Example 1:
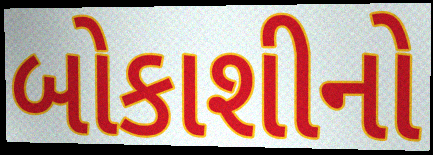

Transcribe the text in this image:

બોકાશીનો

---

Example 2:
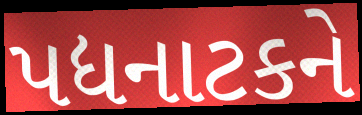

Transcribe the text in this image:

પદ્યનાટકને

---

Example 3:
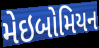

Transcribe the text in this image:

મેઇબોમિયન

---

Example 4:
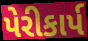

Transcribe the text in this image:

પેરીકાર્પ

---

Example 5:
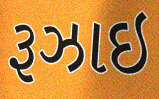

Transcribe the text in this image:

રૂઝાઇ